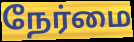
நேர்மை